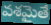
వశమైతే